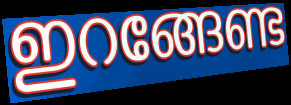
ഇറങ്ങേണ്ട